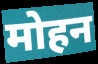
मोहन